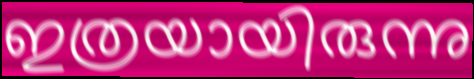
ഇത്രയായിരുന്നു